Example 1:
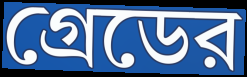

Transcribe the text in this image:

গ্রেডের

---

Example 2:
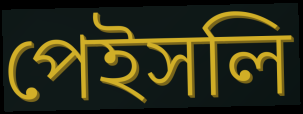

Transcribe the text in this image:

পেইসলি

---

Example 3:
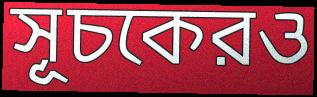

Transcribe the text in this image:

সূচকেরও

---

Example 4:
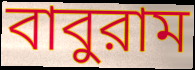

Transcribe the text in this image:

বাবুরাম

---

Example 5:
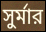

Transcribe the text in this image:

সুর্মার